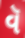
વૅ